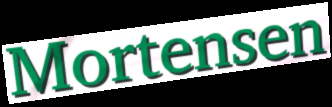
Mortensen